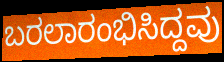
ಬರಲಾರಂಭಿಸಿದ್ದವು